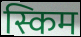
स्किम